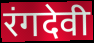
रंगदेवी